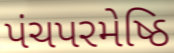
પંચપરમેષ્ઠિ